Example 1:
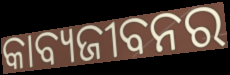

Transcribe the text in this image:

କାବ୍ୟଜୀବନର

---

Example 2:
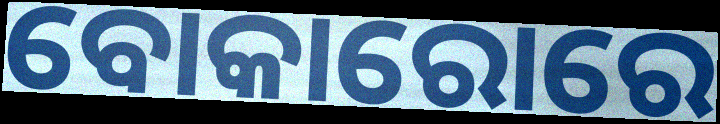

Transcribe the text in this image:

ବୋକାରୋରେ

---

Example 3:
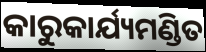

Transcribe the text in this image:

କାରୁକାର୍ଯ୍ୟମଣ୍ଡିତ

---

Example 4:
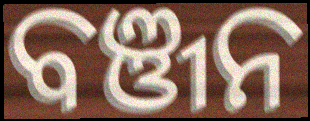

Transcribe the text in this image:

ବଞ୍ଜନ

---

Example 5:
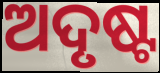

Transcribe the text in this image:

ଅଦୃଷ୍ଟ